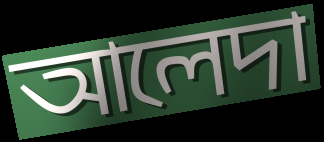
আলেদা